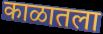
काळातला